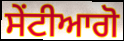
ਸੇਂਟੀਆਗੋ